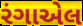
રંગાએલ